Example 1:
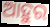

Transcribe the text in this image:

ଆହୁର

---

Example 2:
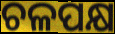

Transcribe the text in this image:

ଚଳପକ୍ଷ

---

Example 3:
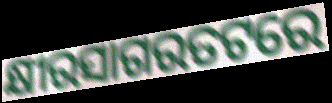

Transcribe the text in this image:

କ୍ଷୀରସାଗରତଟରେ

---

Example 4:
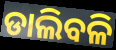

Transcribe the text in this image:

ଡାଲିବଳି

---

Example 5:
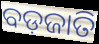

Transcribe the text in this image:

ବଡ଼ଜାତି